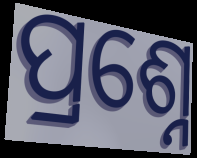
ପ୍ରଶ୍ନେ